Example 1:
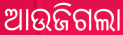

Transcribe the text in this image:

ଆଉଜିଗଲା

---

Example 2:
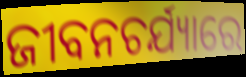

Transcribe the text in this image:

ଜୀବନଚର୍ଯ୍ୟାରେ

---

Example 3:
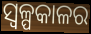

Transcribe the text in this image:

ସ୍ୱଳ୍ପକାଳର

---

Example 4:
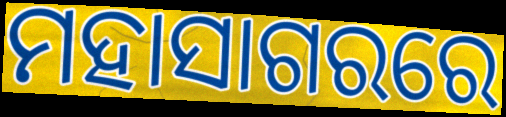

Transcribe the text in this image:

ମହାସାଗରରେ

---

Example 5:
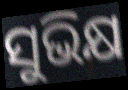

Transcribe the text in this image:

ସୁଭିକ୍ଷ